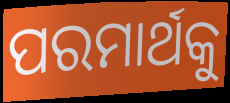
ପରମାର୍ଥକୁ